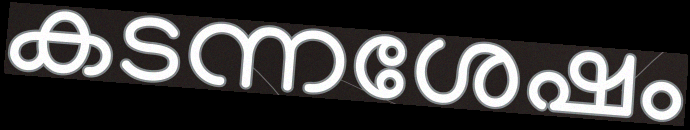
കടന്നശേഷം